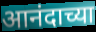
आनंदाच्या